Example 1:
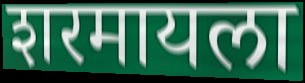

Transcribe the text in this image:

शरमायला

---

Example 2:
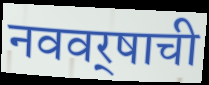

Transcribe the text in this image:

नववर्षाची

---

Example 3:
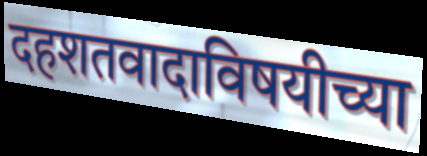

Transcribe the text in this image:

दहशतवादाविषयीच्या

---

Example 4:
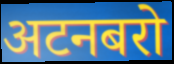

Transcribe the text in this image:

अटनबरो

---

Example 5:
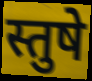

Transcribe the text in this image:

स्तुषे